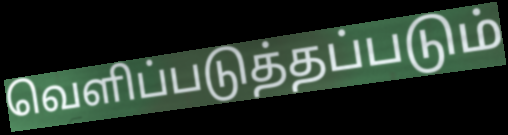
வெளிப்படுத்தப்படும்